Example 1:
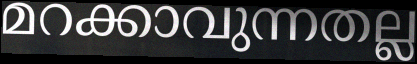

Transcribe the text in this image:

മറക്കാവുന്നതല്ല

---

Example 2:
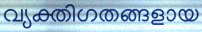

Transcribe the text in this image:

വ്യക്തിഗതങ്ങളായ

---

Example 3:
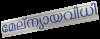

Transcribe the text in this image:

മേല്ന്യായവിധി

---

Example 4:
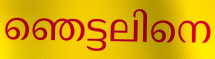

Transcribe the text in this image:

ഞെട്ടലിനെ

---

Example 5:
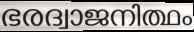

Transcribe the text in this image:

ഭരദ്വാജനിത്ഥം